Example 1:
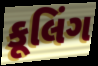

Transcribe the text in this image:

કૂલિંગ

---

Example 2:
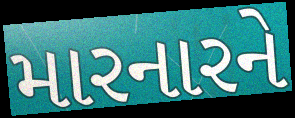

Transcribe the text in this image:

મારનારને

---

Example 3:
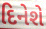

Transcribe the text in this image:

દિનેશે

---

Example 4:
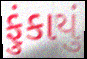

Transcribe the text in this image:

ફુંકાયું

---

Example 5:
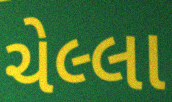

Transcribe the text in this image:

ચેલ્લા